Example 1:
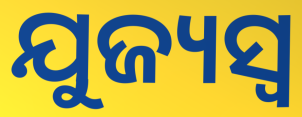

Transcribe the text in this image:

ଯୁଜ୍ୟସ୍ୱ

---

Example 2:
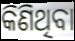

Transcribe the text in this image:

କିଣିଥିବା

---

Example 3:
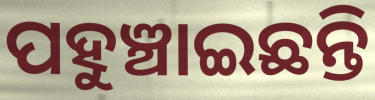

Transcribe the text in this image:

ପହୁଞ୍ଚାଇଛନ୍ତି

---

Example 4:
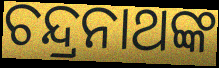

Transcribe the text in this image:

ଚନ୍ଦ୍ରନାଥଙ୍କ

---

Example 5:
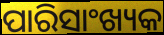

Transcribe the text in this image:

ପାରିସାଂଖ୍ୟକ